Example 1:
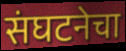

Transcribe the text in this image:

संघटनेचा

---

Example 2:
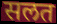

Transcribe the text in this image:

सलत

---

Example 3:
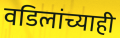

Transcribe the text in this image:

वडिलांच्याही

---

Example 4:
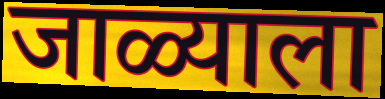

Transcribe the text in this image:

जाळ्याला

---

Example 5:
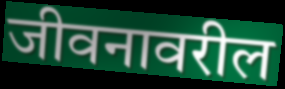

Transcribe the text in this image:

जीवनावरील